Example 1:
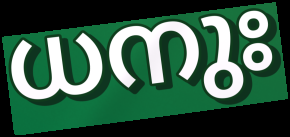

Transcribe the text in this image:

ധനുഃ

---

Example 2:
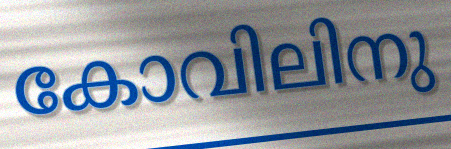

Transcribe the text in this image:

കോവിലിനു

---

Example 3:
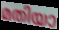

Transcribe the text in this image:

മതിയാ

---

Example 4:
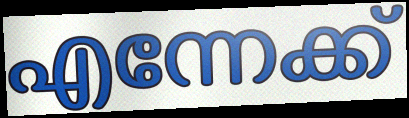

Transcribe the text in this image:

എന്നേക്ക്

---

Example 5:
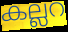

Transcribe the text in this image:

കല്ലറ